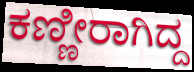
ಕಣ್ಣೀರಾಗಿದ್ದ